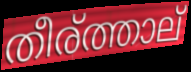
തീര്ത്താല്